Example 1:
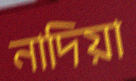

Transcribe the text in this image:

নাদিয়া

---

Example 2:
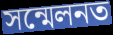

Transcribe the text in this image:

সন্মেলনত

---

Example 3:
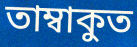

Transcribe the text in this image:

তাম্বাকুত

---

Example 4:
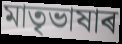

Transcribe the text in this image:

মাতৃভাষাৰ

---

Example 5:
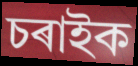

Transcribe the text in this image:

চৰাইক